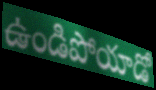
ఉండిపోయాడో